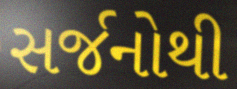
સર્જનોથી